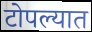
टोपल्यात